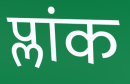
प्लांक